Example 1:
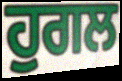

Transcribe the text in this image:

ਹੁਗਲ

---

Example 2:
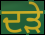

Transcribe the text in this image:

ਦੜੇ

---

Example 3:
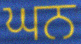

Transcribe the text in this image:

ਘਨ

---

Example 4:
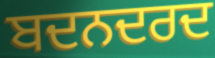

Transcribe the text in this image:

ਬਦਨਦਰਦ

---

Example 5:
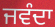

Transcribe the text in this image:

ਜਵੰਦਾ